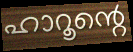
ഹാറൂന്റെ